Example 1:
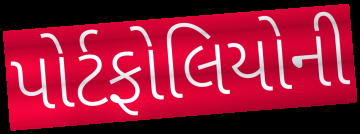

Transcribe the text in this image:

પોર્ટફોલિયોની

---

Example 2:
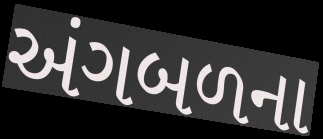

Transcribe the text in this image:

અંગબળના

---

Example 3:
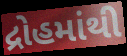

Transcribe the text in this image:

દ્રોહમાંથી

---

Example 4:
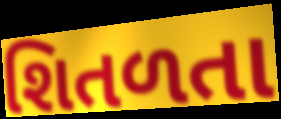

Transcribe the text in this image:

શિતળતા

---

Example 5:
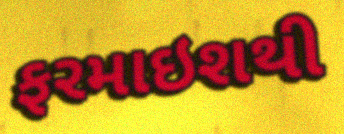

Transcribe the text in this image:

ફરમાઇશથી